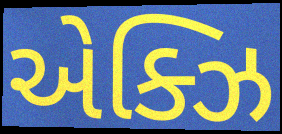
એક્ઝિ